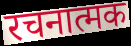
रचनात्मक